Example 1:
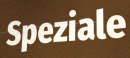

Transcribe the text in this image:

Speziale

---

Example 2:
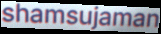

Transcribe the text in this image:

shamsujaman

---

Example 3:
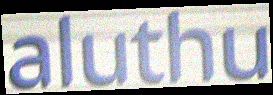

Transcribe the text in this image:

aluthu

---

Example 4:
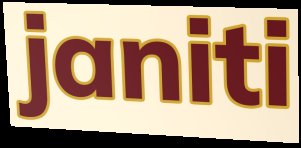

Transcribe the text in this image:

janiti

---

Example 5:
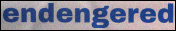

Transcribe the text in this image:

endengered